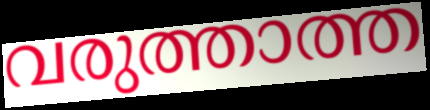
വരുത്താത്ത